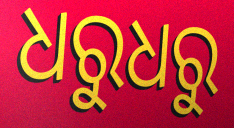
ଧରୁଧରୁ